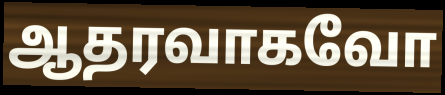
ஆதரவாகவோ